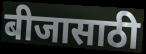
बीजासाठी